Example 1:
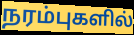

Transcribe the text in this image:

நரம்புகளில்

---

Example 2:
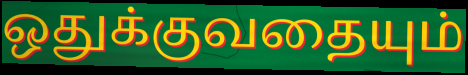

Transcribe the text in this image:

ஒதுக்குவதையும்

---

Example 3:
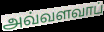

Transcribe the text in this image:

அவ்வளவாப்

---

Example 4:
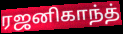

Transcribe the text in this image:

ரஜனிகாந்த்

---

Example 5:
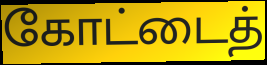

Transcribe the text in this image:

கோட்டைத்